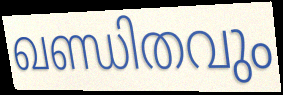
ഖണ്ഡിതവും